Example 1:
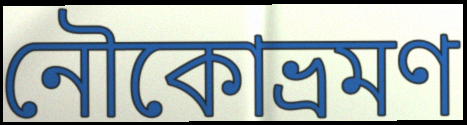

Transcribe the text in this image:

নৌকোভ্রমণ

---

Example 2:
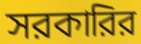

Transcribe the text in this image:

সরকারির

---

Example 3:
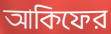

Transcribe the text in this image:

আকিফের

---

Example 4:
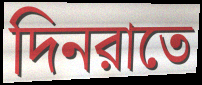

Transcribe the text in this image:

দিনরাতে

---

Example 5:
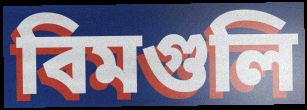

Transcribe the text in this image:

বিমগুলি